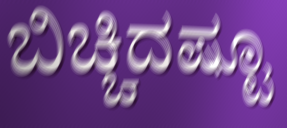
ಬಿಚ್ಚಿದಷ್ಟೂ